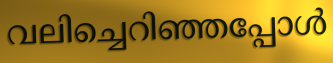
വലിച്ചെറിഞ്ഞപ്പോൾ